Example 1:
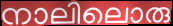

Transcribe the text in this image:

നാലിലൊരു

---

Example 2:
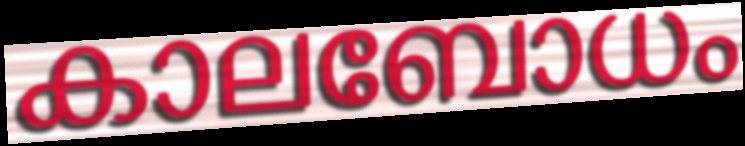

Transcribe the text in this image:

കാലബോധം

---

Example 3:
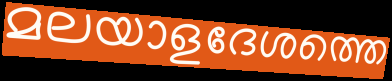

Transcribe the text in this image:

മലയാളദേശത്തെ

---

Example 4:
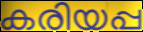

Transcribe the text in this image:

കരിയപ്പ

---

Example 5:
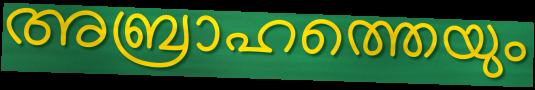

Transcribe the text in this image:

അബ്രാഹത്തെയും